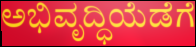
ಅಭಿವೃದ್ಧಿಯೆಡೆಗೆ